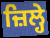
ਜ਼ਿਲ੍ਹੇ